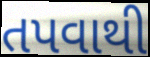
તપવાથી